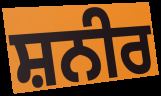
ਸ਼ਨੀਰ